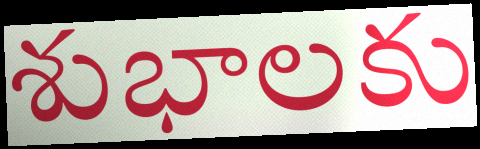
శుభాలకు